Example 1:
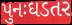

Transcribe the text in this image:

પુનઃઘડતર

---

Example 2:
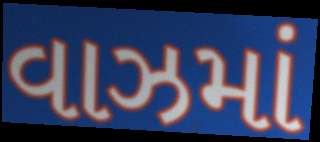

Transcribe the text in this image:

વાઝમાં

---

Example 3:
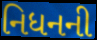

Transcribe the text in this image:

નિધનની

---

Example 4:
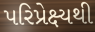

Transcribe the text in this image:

પરિપ્રેક્ષ્યથી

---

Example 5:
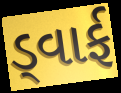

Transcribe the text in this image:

ડ્વાર્ફ